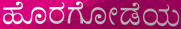
ಹೊರಗೋಡೆಯ